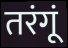
तरंगूं